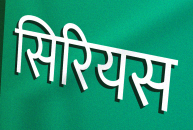
सिरियस